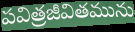
పవిత్రజీవితమును